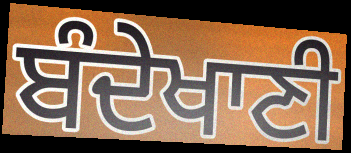
ਬੰਦੇਖਾਣੀ